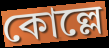
কোল্লে